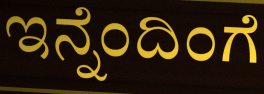
ಇನ್ನೆಂದಿಂಗೆ